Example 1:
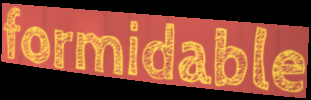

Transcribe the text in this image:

formidable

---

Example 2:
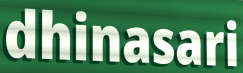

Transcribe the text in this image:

dhinasari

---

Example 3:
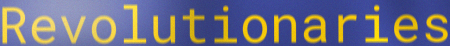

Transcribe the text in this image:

Revolutionaries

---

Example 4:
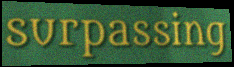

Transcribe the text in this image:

surpassing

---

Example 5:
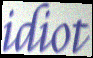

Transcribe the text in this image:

idiot